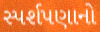
સ્પર્શપણાનો